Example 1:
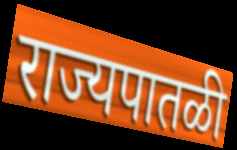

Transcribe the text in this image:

राज्यपातळी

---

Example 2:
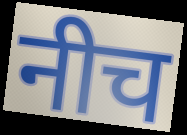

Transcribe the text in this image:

नीच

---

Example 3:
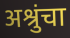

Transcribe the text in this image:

अश्रुंचा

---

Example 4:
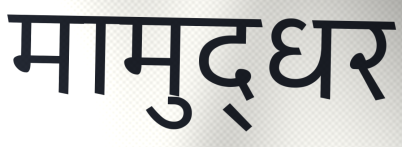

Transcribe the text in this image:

मामुद्धर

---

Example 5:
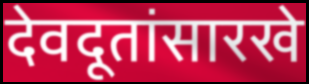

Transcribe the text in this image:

देवदूतांसारखे